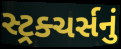
સ્ટ્રક્ચર્સનું